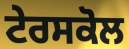
ਟੇਰਸਕੋਲ